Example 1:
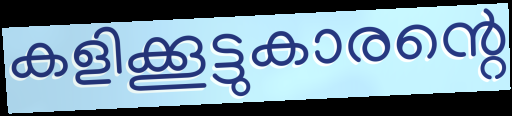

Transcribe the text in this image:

കളിക്കൂട്ടുകാരന്റെ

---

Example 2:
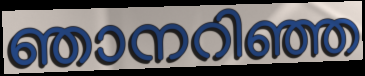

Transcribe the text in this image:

ഞാനറിഞ്ഞ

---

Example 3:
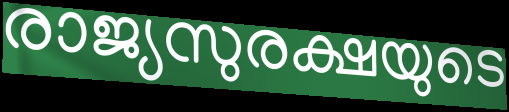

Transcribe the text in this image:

രാജ്യസുരക്ഷയുടെ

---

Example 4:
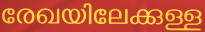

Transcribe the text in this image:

രേഖയിലേക്കുള്ള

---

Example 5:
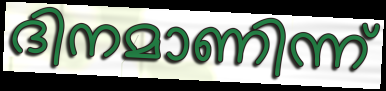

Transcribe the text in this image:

ദിനമാണിന്ന്